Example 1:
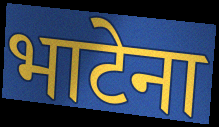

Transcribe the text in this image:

भाटेना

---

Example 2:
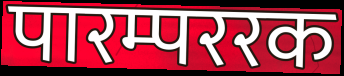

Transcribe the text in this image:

पारम्पररक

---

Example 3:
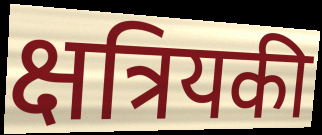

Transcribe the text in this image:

क्षत्रियकी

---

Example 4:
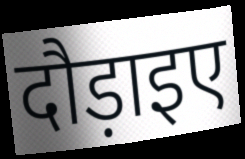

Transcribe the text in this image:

दौड़ाइए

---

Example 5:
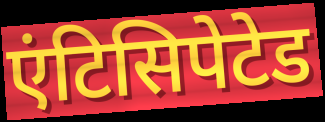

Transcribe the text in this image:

एंटिसिपेटेड